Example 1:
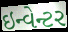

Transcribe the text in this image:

ઇન્વેન્ટર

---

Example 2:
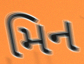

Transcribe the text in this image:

મિન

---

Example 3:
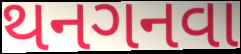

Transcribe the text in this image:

થનગનવા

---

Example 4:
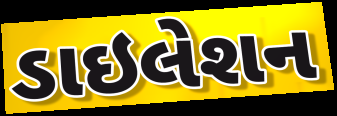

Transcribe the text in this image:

ડાઇલેશન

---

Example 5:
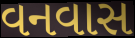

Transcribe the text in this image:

વનવાસ